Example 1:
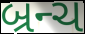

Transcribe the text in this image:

બ્રન્ચ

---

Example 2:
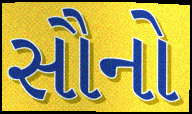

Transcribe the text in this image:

સૌનો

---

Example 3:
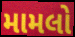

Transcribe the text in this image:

મામલો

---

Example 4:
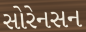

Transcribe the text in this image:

સોરેનસન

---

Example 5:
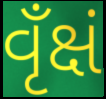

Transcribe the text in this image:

વૃઁક્ષં